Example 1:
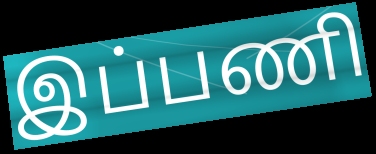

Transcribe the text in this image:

இப்பணி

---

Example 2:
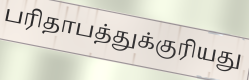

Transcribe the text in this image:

பரிதாபத்துக்குரியது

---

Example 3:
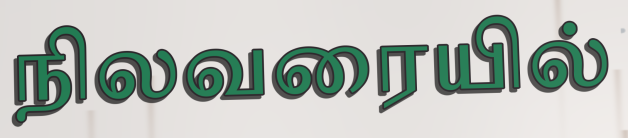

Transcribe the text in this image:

நிலவரையில்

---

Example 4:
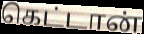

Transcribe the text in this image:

கெட்டான்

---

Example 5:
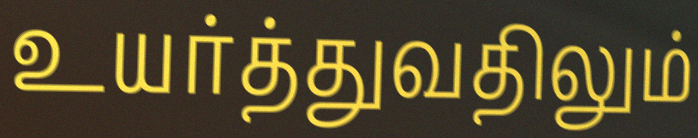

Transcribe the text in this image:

உயர்த்துவதிலும்